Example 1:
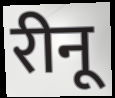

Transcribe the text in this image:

रीनू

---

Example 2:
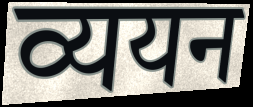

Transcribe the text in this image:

व्ययन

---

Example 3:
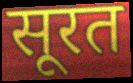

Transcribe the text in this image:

सूरत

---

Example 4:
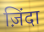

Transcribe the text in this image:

ज़िंदा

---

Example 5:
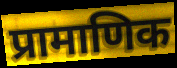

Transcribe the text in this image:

प्रामाणिक